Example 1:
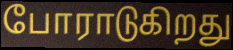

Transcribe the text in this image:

போராடுகிறது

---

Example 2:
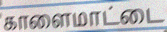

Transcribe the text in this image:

காளைமாட்டை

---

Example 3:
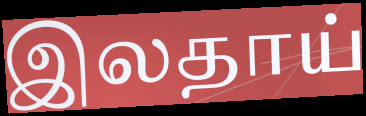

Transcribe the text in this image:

இலதாய்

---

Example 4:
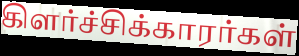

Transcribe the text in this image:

கிளர்ச்சிக்காரர்கள்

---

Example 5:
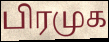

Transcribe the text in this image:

பிரமுக